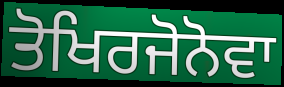
ਤੋਖਿਰਜੋਨੋਵਾ